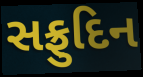
સફ્રુદિન